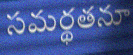
సమర్థతనూ